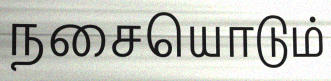
நசையொடும்